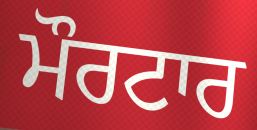
ਮੌਰਟਾਰ